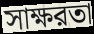
সাক্ষরতা